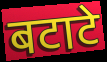
बटाटे